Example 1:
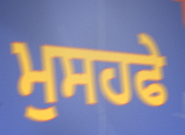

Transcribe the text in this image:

ਮੁਸਹਫੇ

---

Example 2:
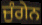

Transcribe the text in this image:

ਜੁੰਗੇਨ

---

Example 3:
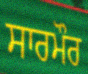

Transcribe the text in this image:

ਸਾਰਮੌਰ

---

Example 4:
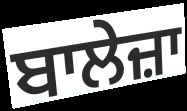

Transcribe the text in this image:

ਬਾਲੇਜ਼ਾ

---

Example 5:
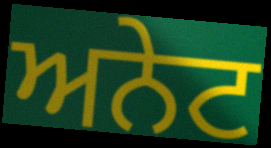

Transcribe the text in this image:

ਅਨੇਟ